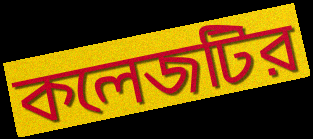
কলেজটির